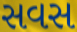
સવસ